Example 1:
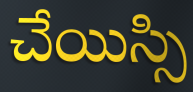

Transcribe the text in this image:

చేయిస్సి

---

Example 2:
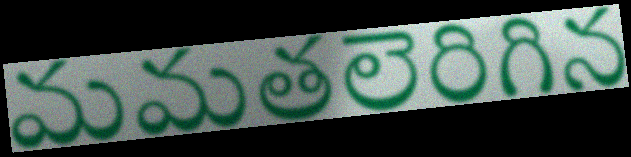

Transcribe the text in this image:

మమతలెరిగిన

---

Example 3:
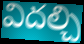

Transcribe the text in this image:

విదల్చి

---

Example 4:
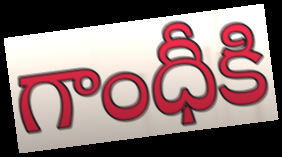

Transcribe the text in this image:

గాంధీకి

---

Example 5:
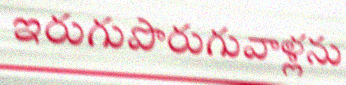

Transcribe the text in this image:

ఇరుగుపొరుగువాళ్లను